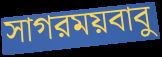
সাগরময়বাবু